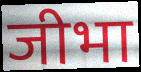
जीभा